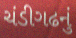
ચંડીગઢનું